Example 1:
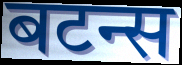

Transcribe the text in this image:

बटन्स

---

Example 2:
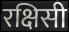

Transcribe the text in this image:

रक्षिसी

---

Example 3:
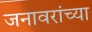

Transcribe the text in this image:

जनावरांच्या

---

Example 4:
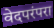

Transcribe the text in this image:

वेदपरंपरा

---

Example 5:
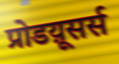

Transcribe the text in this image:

प्रोडय़ूसर्स